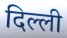
दिल्ली